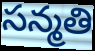
సన్మతి